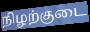
நிழற்குடை